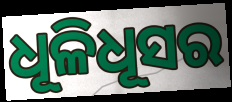
ଧୂଳିଧୂସର